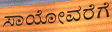
ಸಾಯೋವರೆಗೆ